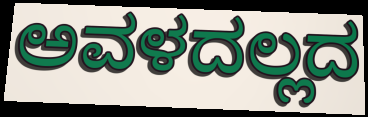
ಅವಳದಲ್ಲದ